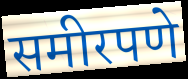
समीरपणे